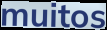
muitos